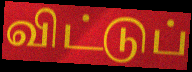
விட்டுப்